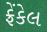
ફ્રેંકેલ